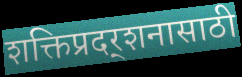
शक्तिप्रदर्शनासाठी